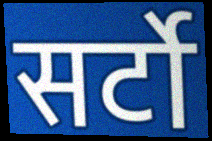
सर्टो